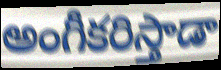
అంగీకరిస్తాడా